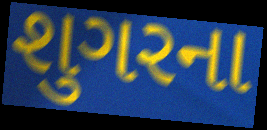
શુગરના